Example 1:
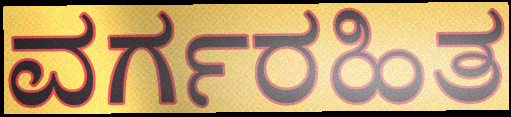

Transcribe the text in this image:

ವರ್ಗರಹಿತ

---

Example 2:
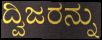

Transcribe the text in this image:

ದ್ವಿಜರನ್ನು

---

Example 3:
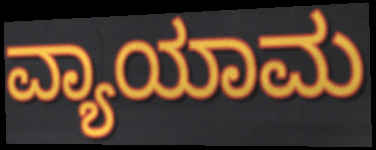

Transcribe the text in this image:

ವ್ಯಾಯಾಮ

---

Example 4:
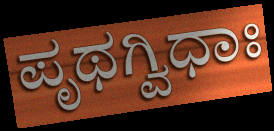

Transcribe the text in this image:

ಪೃಥಗ್ವಿಧಾಃ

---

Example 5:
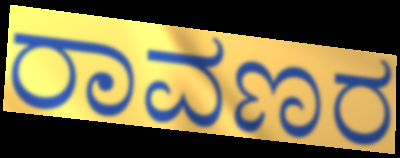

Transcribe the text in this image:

ರಾವಣರ